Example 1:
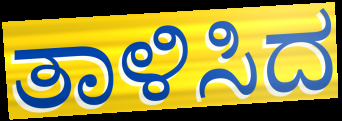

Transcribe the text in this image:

ತಾಳಿಸಿದ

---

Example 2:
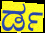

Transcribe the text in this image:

ರ್ಡ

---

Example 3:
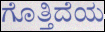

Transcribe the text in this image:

ಗೊತ್ತಿದೆಯ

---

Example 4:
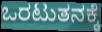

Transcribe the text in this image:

ಒರಟುತನಕ್ಕೆ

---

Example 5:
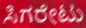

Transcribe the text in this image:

ಸಿಗರೇಟು